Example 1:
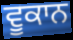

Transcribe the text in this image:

ਵੂਕਾਨ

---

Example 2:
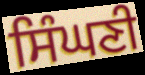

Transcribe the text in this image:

ਸਿੰਘਣੀ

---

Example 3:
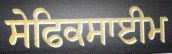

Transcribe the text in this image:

ਸੇਫਿਕਸਾਈਮ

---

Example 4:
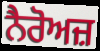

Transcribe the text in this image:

ਨੈਰੋਅਜ਼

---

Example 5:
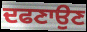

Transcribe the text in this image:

ਦਫਣਾਉਣ